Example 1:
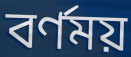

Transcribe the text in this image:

বর্ণময়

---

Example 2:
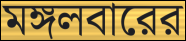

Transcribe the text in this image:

মঙ্গলবারের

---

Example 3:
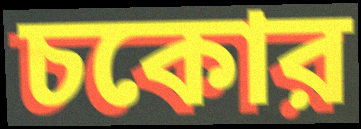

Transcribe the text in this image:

চকোর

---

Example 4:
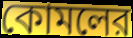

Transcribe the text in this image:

কোমলের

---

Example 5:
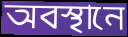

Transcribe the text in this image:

অবস্থানে